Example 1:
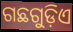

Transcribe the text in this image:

ଗଛଗୁଡ଼ିଏ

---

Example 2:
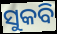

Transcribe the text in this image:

ସୁକବି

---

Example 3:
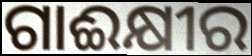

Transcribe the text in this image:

ଗାଈକ୍ଷୀର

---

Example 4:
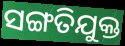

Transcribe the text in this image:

ସଙ୍ଗତିଯୁକ୍ତ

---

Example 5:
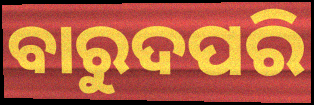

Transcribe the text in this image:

ବାରୁଦପରି